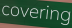
covering